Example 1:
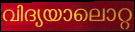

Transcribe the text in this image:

വിദ്യയാലൊറ്റ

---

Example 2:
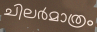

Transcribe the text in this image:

ചിലർമാത്രം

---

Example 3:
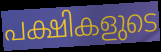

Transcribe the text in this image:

പക്ഷികളുടെ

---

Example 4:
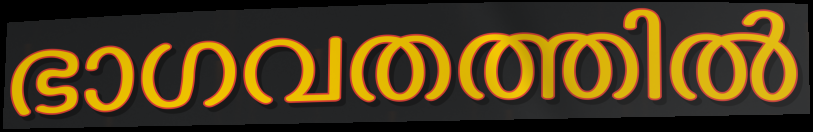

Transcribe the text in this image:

ഭാഗവതത്തിൽ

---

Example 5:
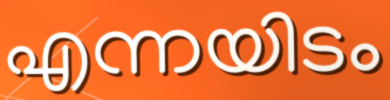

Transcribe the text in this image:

എന്നയിടം